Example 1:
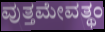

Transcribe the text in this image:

ವುತ್ತಮೇವತ್ಥಂ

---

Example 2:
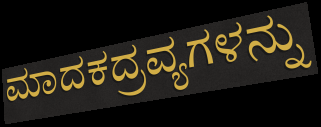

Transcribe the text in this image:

ಮಾದಕದ್ರವ್ಯಗಳನ್ನು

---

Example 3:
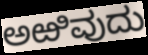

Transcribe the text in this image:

ಅಱಿವುದು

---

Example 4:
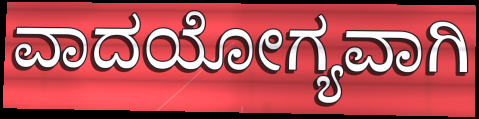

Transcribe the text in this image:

ವಾದಯೋಗ್ಯವಾಗಿ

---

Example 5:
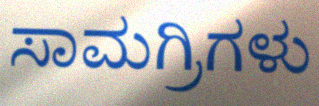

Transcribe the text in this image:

ಸಾಮಗ್ರಿಗಳು